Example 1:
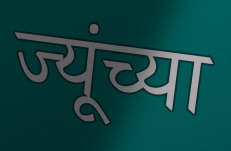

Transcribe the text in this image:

ज्यूंच्या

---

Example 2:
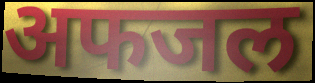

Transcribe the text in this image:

अफजल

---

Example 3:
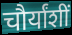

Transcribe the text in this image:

चौर्यांशीं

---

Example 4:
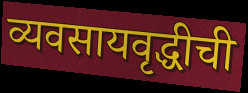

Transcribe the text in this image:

व्यवसायवृद्धीची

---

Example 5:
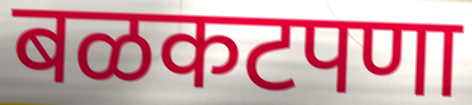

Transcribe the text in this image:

बळकटपणा